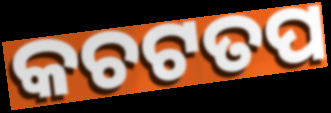
କଚଟତପ